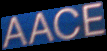
AACE